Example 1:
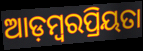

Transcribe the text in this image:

ଆଡ଼ମ୍ବରପ୍ରିୟତା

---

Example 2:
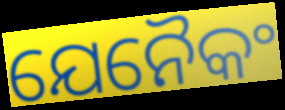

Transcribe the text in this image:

ଯେନୈକଂ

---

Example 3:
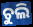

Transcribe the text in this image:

ଚୁଲି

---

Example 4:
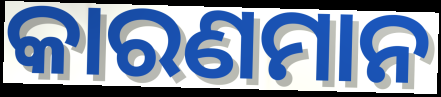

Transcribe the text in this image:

କାରଣମାନ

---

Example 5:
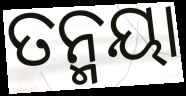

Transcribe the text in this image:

ତନ୍ମୟା